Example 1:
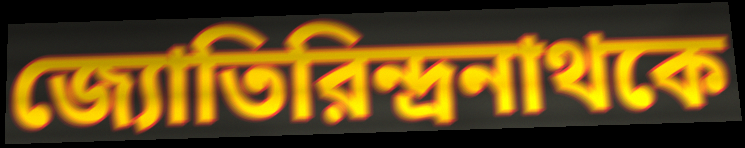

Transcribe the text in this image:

জ্যোতিরিন্দ্রনাথকে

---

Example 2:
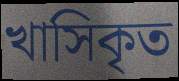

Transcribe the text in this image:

খাসিকৃত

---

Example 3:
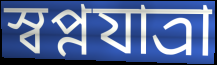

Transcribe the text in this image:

স্বপ্নযাত্রা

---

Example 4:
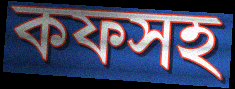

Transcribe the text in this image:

কফসহ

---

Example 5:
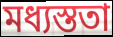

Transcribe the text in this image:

মধ্যস্ততা